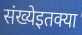
संख्येइतक्या